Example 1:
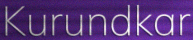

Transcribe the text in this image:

Kurundkar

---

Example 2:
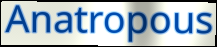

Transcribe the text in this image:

Anatropous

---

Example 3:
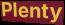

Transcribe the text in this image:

Plenty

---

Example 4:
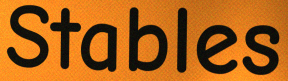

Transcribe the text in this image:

Stables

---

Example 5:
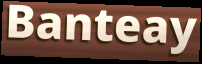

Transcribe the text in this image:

Banteay